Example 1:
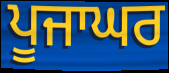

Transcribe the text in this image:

ਪੂਜਾਘਰ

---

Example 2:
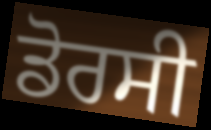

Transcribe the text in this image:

ਡੋਰਸੀ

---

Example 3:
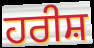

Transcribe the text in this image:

ਹਰੀਸ਼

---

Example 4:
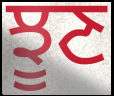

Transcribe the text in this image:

ਝੂਣ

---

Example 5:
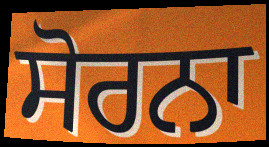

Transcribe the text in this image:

ਸੋਰਨਾ